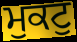
ਮੁਕਟੁ